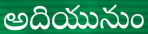
అదియునుం